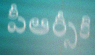
పీఆర్సీకి